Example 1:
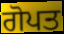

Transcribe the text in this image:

ਗੋਪਤ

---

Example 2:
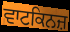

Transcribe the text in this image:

ਵਾਟਕਿਨਜ਼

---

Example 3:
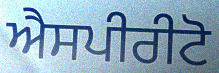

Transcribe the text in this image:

ਐਸਪੀਰੀਟੋ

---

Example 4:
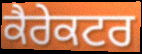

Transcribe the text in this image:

ਕੈਰੇਕਟਰ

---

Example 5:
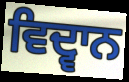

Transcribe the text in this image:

ਵਿਦ੍ਵਾਨ